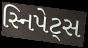
સ્નિપેટ્સ